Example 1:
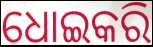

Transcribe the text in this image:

ଧୋଇକରି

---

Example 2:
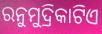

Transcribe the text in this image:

ରନୁମୁଦ୍ରିକାଟିଏ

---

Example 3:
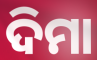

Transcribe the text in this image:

ଦିମା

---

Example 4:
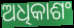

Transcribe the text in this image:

ଅଧିକାଶଂ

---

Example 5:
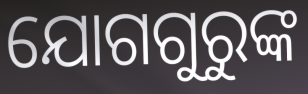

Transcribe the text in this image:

ଯୋଗଗୁରୁଙ୍କ